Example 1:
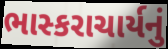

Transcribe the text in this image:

ભાસ્કરાચાર્યનું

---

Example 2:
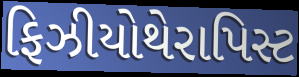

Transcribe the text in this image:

ફિઝીયોથેરાપિસ્ટ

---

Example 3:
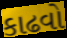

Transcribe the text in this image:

કાઢવો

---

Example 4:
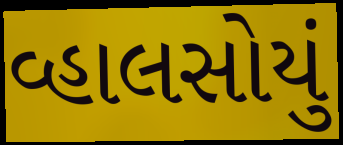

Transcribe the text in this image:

વ્હાલસોયું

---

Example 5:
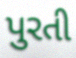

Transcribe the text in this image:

પુરતી